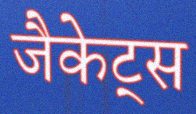
जैकेट्स